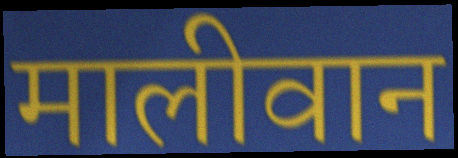
मालीवान